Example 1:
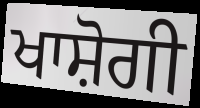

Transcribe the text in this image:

ਖਾਸ਼ੋਗੀ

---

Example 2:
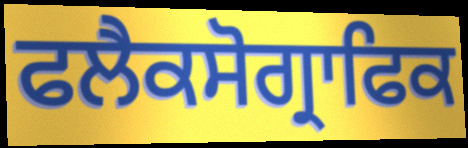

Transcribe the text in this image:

ਫਲੈਕਸੋਗ੍ਰਾਫਿਕ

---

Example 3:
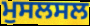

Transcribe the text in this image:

ਮੁਸਲਸਲ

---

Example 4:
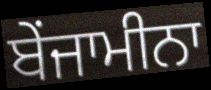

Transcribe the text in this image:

ਬੇਂਜਾਮੀਨਾ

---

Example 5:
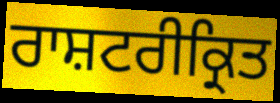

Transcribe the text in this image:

ਰਾਸ਼ਟਰੀਕ੍ਰਿਤ